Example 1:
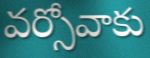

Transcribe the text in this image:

వర్సోవాకు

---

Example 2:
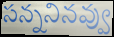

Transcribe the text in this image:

సన్ననినవ్వు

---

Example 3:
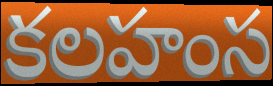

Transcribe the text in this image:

కలహంస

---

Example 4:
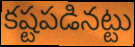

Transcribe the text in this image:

కష్టపడినట్టు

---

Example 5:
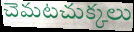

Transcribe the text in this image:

చెమటచుక్కలు